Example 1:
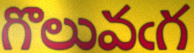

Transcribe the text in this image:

గొలువఁగ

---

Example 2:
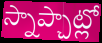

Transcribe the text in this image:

స్నాప్చాట్లో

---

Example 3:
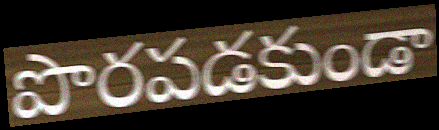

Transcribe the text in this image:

పొరపడకుండా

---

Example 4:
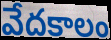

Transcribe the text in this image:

వేదకాలం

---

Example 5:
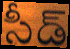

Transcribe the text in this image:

సీడ్